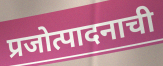
प्रजोत्पादनाची